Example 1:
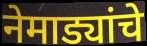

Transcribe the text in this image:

नेमाड्यांचे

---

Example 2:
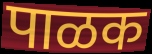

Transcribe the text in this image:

पाळक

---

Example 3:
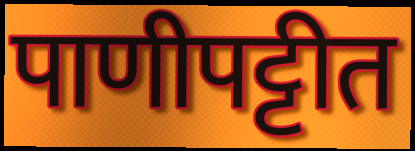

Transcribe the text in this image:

पाणीपट्टीत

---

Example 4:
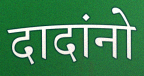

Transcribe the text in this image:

दादांनो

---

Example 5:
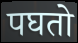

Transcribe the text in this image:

पघतो